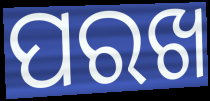
ପରଖ